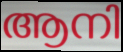
ആനി